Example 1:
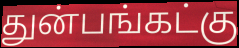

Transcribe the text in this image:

துன்பங்கட்கு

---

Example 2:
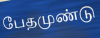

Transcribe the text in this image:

பேதமுண்டு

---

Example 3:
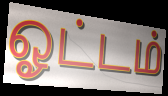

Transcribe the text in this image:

ஓட்டம்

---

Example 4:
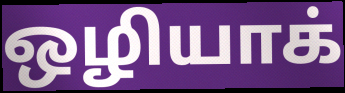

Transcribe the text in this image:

ஒழியாக்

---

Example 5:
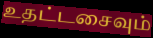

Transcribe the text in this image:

உதட்டசைவும்